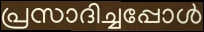
പ്രസാദിച്ചപ്പോൾ